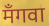
मँगवा